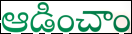
ఆడించాం